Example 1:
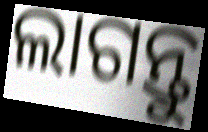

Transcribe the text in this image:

ଲାଗନ୍ତୁ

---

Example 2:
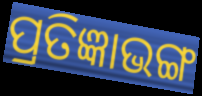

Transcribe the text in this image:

ପ୍ରତିଜ୍ଞାଭଙ୍ଗ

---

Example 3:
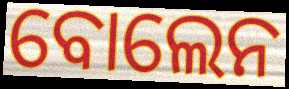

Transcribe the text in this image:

ବୋଲେନ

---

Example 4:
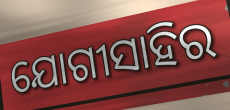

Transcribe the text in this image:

ଯୋଗୀସାହିର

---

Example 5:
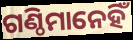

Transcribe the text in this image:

ଗଣ୍ଠିମାନେହିଁ